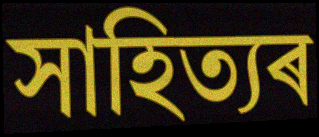
সাহিত্যৰ